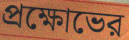
প্রক্ষোভের